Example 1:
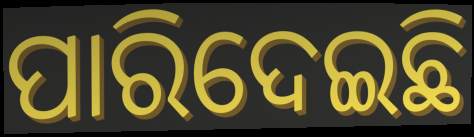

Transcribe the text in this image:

ପାରିଦେଇଛି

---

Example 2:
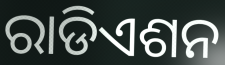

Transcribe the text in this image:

ରାଡିଏଶନ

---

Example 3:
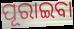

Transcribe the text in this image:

ପୂରାଇବା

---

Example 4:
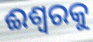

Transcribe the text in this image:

ଈଶ୍ୱରକୁ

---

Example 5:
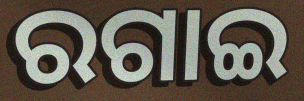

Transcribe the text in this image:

ରଗାଇ